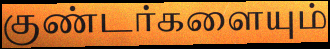
குண்டர்களையும்